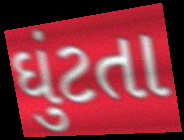
ઘુંટતા